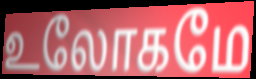
உலோகமே